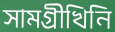
সামগ্ৰীখিনি